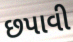
છપાવી